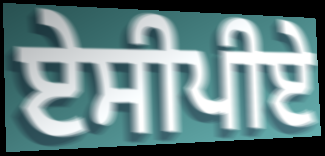
ਏਸੀਪੀਏ